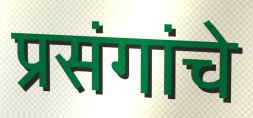
प्रसंगांचे